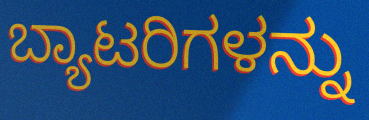
ಬ್ಯಾಟರಿಗಳನ್ನು